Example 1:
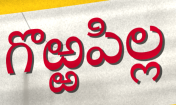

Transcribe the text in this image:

గొఱ్ఱపిల్ల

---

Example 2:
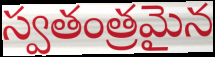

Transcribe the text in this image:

స్వతంత్రమైన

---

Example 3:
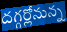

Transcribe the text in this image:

దగ్గర్లోనున్న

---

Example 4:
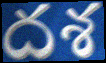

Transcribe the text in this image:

దశ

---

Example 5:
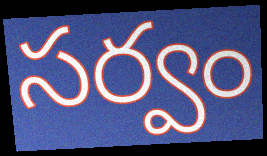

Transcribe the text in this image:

సర్వం